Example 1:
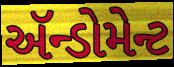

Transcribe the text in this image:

ઍન્ડોમેન્ટ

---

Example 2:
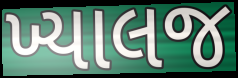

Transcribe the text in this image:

ખ્યાલજ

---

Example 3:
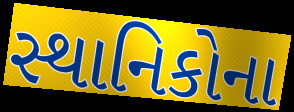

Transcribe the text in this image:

સ્થાનિકોના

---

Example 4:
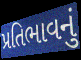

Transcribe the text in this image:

પ્રતિભાવનું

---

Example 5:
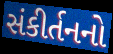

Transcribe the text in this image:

સંકીર્તનનો